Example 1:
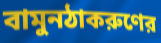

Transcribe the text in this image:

বামুনঠাকরুণের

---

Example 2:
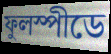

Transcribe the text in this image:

ফুলস্পীডে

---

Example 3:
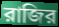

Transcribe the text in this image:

রাজির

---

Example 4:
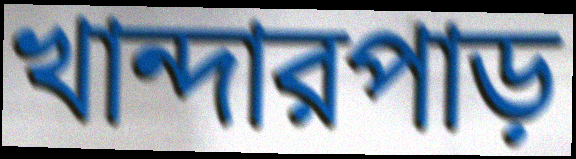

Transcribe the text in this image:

খান্দারপাড়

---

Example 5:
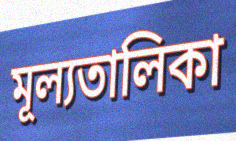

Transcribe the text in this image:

মূল্যতালিকা